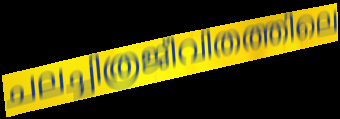
ചലച്ചിത്രജീവിതത്തിലെ